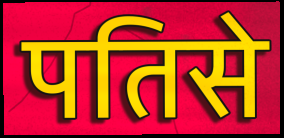
पतिसे